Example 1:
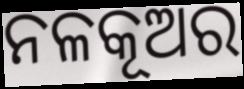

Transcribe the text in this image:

ନଳକୂଅର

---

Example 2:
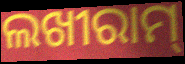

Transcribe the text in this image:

ଲଖୀରାମ୍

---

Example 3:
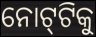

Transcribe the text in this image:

ନୋଟ୍‌ଟିକୁ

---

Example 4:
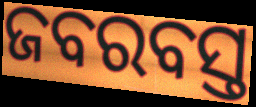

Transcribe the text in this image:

ଜବରବସ୍ତ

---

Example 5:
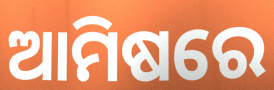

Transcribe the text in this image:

ଆମିଷରେ